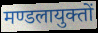
मण्डलायुक्तों